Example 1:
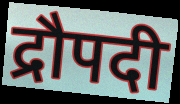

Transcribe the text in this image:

द्रौपदी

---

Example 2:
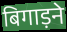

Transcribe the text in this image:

बिगाड़ने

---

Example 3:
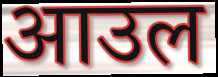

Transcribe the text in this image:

आउल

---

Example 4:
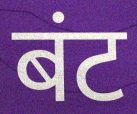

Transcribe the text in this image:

बंट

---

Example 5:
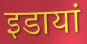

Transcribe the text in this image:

इडायां